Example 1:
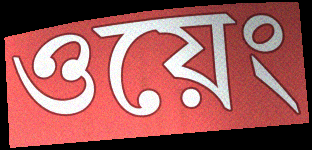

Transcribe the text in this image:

ওয়েং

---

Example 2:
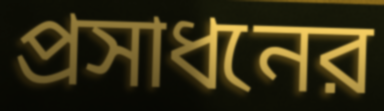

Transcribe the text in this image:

প্রসাধনের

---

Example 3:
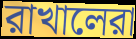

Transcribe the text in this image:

রাখালেরা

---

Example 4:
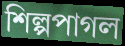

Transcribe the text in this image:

শিল্পপাগল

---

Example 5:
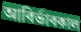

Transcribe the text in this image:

আবির্ভাবকাল